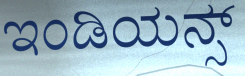
ಇಂಡಿಯನ್ಸ್